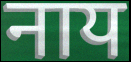
नाय